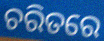
ଚରିତରେ